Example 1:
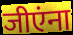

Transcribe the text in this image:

जीएंना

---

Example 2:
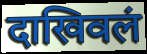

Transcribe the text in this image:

दाखिवलं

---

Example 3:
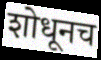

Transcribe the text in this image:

शोधूनच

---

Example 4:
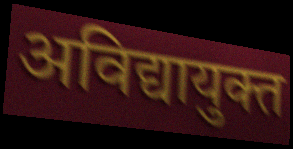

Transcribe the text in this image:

अविद्यायुक्त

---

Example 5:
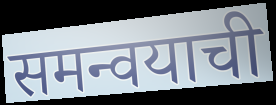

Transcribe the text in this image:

समन्वयाची